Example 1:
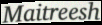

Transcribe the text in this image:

Maitreesh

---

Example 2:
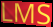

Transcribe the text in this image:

LMS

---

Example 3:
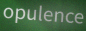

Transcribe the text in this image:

opulence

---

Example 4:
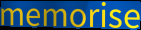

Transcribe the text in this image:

memorise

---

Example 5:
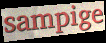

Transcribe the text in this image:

sampige